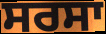
ਸਰਸਾ